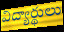
విద్యార్థులు